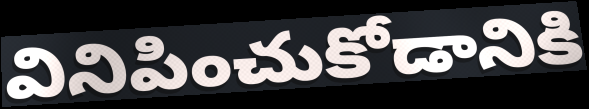
వినిపించుకోడానికి